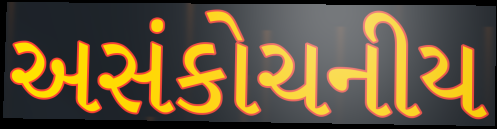
અસંકોચનીય